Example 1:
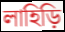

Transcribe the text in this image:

লাহিড়ি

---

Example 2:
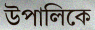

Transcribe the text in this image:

উপালিকে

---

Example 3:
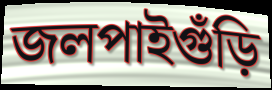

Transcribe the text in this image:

জলপাইগুঁড়ি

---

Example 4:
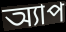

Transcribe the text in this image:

অ্যাপ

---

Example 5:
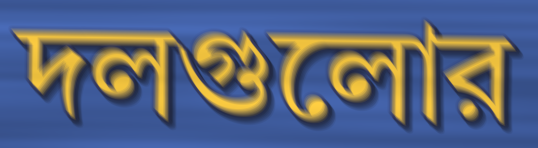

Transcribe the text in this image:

দলগুলোর